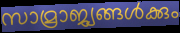
സാമ്രാജ്യങ്ങൾക്കും